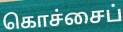
கொச்சைப்